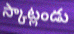
స్కాట్లండు